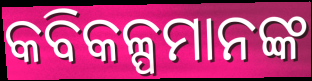
କବିକଳ୍ପମାନଙ୍କ